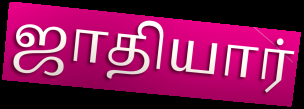
ஜாதியார்